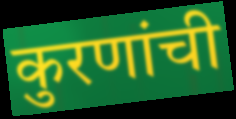
कुरणांची